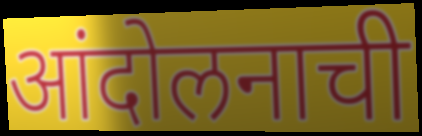
आंदोलनाची